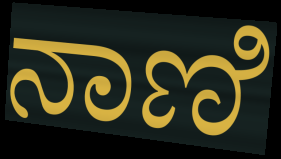
ನಾಣಿ